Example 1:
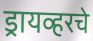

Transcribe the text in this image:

ड्रायव्हरचे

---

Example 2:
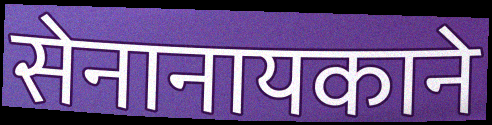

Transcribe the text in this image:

सेनानायकाने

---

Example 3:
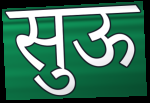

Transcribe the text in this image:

सुऊ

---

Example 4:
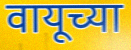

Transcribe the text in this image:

वायूच्या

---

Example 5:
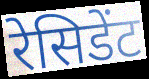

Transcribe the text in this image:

रेसिडेंट